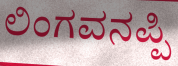
ಲಿಂಗವನಪ್ಪಿ